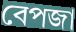
বেপজা